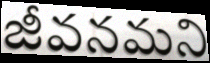
జీవనమని